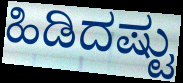
ಹಿಡಿದಷ್ಟು